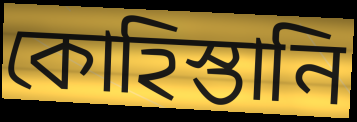
কোহিস্তানি